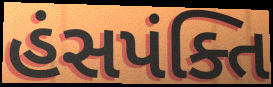
હંસપંક્તિ